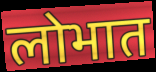
लोभात